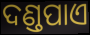
ଦଣ୍ଡପାଏ